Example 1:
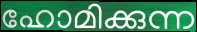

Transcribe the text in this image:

ഹോമിക്കുന്ന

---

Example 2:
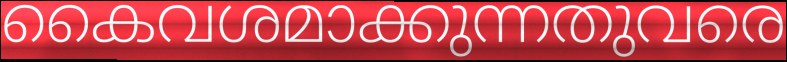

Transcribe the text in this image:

കൈവശമാക്കുന്നതുവരെ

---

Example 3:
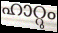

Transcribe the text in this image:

ഹാറ്റും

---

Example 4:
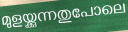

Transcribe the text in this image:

മുളയ്ക്കുന്നതുപോലെ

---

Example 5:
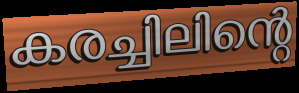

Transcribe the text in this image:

കരച്ചിലിന്റെ